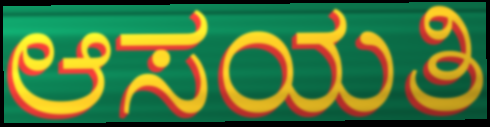
ಆಸಯತಿ